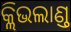
କ୍ଲିଭଲାଣ୍ଡ